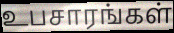
உபசாரங்கள்